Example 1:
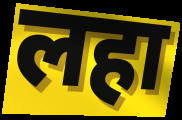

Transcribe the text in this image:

लहा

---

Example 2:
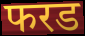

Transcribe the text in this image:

फरड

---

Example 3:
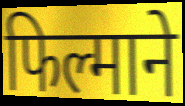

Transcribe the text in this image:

फिल्माने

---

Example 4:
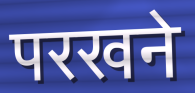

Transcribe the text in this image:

परखने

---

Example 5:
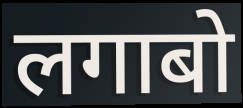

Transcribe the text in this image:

लगाबो